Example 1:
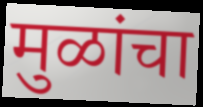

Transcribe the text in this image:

मुळांचा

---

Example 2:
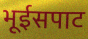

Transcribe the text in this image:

भूईसपाट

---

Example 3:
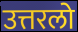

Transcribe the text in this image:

उत्तरलो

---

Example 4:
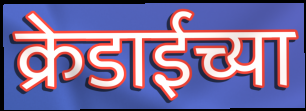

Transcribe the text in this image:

क्रेडाईच्या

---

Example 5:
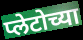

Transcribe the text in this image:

प्लेटोच्या